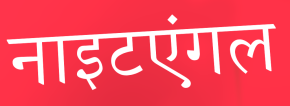
नाइटएंगल